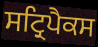
ਸਟ੍ਰਿਪੈਕਸ